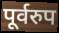
पूर्वरुप